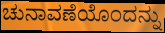
ಚುನಾವಣೆಯೊಂದನ್ನು